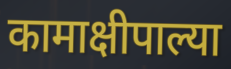
कामाक्षीपाल्या